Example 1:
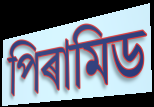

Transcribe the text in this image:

পিৰামিড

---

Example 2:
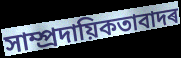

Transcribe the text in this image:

সাম্প্ৰদায়িকতাবাদৰ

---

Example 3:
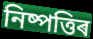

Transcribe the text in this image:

নিষ্পত্তিৰ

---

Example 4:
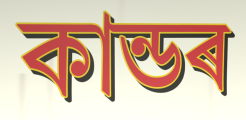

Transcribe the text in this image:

কান্ডৰ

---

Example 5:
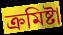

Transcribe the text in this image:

ক্ৰমিষ্টা